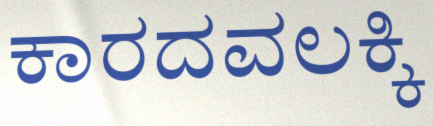
ಕಾರದವಲಕ್ಕಿ